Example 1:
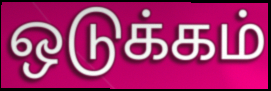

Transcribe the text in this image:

ஒடுக்கம்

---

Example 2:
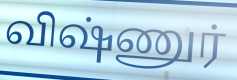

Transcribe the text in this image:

விஷ்ணுர்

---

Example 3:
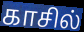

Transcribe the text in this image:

காசில்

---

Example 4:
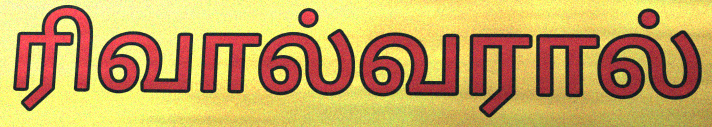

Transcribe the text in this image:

ரிவால்வரால்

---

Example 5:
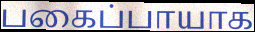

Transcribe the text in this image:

பகைப்பாயாக